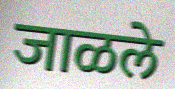
जाळले